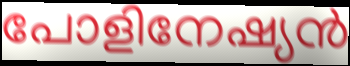
പോളിനേഷ്യൻ